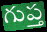
గుప్త